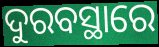
ଦୁରବସ୍ଥାରେ